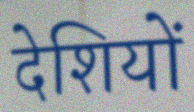
देशियों